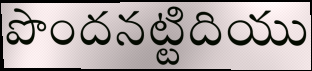
పొందనట్టిదియు